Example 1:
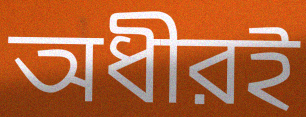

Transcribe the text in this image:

অধীরই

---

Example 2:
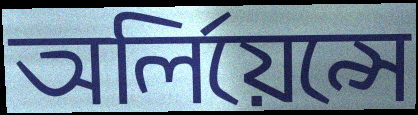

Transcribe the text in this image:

অর্লিয়েন্সে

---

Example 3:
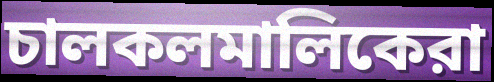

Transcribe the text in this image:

চালকলমালিকেরা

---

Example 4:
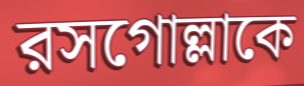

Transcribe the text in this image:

রসগোল্লাকে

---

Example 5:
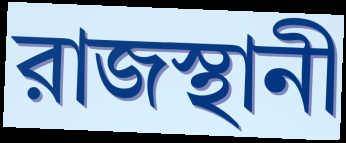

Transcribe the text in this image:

রাজস্থানী